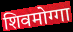
शिवमोग्गा